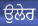
ਉਲੇਰ